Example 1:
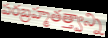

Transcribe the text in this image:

పరబ్రహ్మతత్త్వాన్ని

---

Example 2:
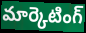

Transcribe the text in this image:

మార్కెటింగ్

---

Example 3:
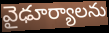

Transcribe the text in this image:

వైఢూర్యాలను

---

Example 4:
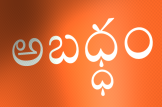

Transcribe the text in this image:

అబధ్ధం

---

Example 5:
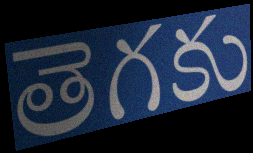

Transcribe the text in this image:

తెగకు